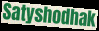
Satyshodhak